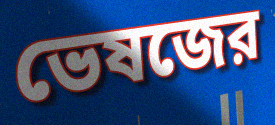
ভেষজের